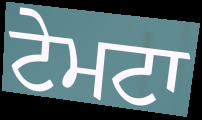
ਟੇਮਟਾ